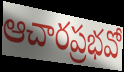
ఆచారప్రభవో